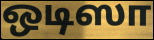
ஒடிஸா